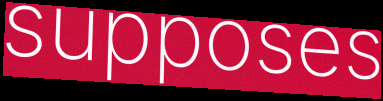
supposes